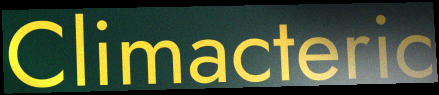
Climacteric